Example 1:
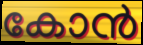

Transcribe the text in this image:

കോൻ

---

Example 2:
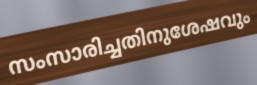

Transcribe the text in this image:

സംസാരിച്ചതിനുശേഷവും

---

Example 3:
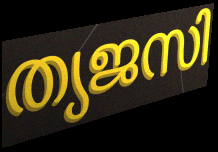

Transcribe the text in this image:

ത്യജസി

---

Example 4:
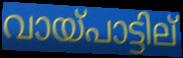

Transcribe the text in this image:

വായ്പാട്ടില്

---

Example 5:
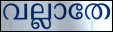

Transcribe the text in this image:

വല്ലാതേ